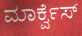
ಮಾರ್ಕ್ವೆಸ್